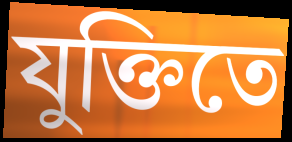
যুক্তিতে